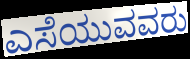
ಎಸೆಯುವವರು